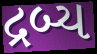
દ્રબ્ય